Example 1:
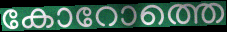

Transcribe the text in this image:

കോറോത്തെ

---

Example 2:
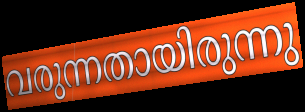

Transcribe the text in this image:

വരുന്നതായിരുന്നു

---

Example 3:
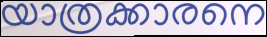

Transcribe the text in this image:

യാത്രക്കാരനെ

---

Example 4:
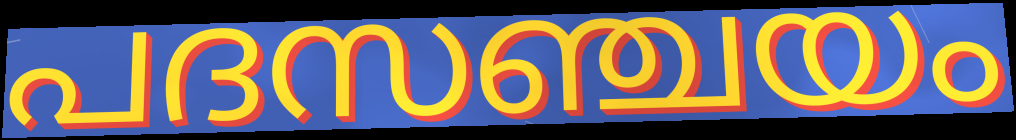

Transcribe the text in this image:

പദസഞ്ചയം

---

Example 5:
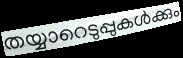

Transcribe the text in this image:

തയ്യാറെടുപ്പുകൾക്കും